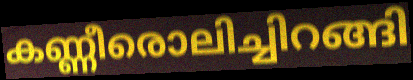
കണ്ണീരൊലിച്ചിറങ്ങി